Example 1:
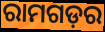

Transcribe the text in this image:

ରାମଗଡ଼ର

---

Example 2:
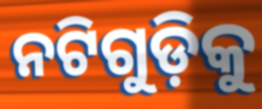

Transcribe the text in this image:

ନଟିଗୁଡ଼ିକୁ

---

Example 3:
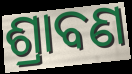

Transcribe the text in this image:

ଶ୍ରାବଣ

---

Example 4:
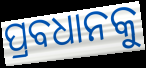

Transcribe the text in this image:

ପ୍ରବଧାନକୁ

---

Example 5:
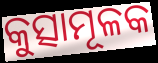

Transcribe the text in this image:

କୁତ୍ସାମୂଳକ